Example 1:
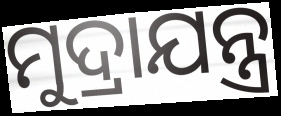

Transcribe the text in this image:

ମୁଦ୍ରାଯନ୍ତ୍ର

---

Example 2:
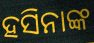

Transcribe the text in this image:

ହସିନାଙ୍କ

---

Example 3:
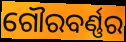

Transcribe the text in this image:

ଗୌରବର୍ଣ୍ଣର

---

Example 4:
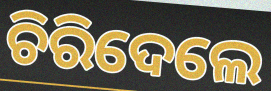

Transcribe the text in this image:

ଚିରିଦେଲେ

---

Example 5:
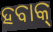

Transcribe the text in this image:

ହବାକ୍